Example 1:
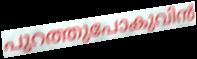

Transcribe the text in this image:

പുറത്തുപോകുവിൻ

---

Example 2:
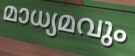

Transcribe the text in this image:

മാധ്യമവും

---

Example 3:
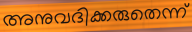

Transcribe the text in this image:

അനുവദിക്കരുതെന്ന്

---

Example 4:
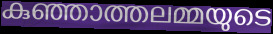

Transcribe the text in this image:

കുഞ്ഞാത്തലമ്മയുടെ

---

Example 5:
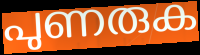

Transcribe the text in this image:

പുണരുക